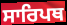
ਸਾਰਿਪਥ